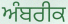
ਅੰਬਰੀਕ